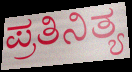
ಪ್ರತಿನಿತ್ಯ